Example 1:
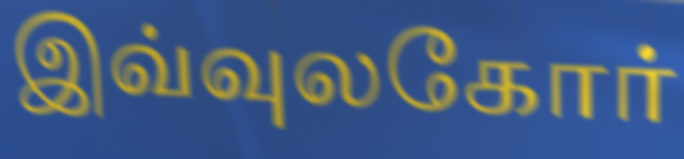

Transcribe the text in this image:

இவ்வுலகோர்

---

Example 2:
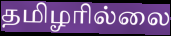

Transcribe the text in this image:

தமிழரில்லை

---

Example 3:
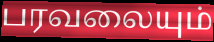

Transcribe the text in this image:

பரவலையும்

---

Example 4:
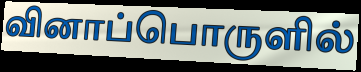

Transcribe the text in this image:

வினாப்பொருளில்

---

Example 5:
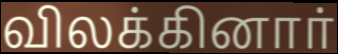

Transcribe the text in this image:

விலக்கினார்